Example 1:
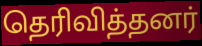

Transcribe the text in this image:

தெரிவித்தனர்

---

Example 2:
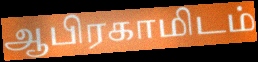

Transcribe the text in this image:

ஆபிரகாமிடம்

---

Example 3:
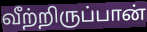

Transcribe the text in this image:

வீற்றிருப்பான்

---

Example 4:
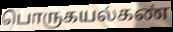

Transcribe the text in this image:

பொருகயல்கண்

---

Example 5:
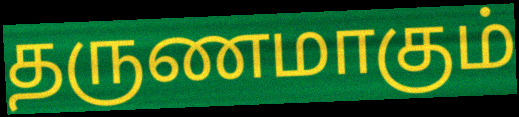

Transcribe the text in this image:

தருணமாகும்